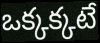
ఒక్కక్కటే